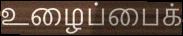
உழைப்பைக்